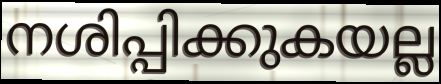
നശിപ്പിക്കുകയല്ല